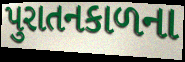
પુરાતનકાળના